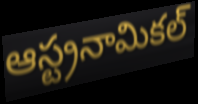
ఆస్ట్రనామికల్